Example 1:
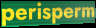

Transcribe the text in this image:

perisperm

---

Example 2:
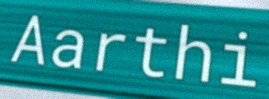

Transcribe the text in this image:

Aarthi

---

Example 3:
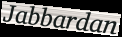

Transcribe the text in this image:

Jabbardan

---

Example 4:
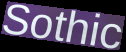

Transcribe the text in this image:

Sothic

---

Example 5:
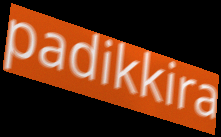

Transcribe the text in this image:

padikkira